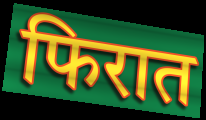
फिरात